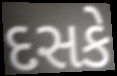
દસકે